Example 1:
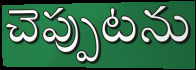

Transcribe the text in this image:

చెప్పుటను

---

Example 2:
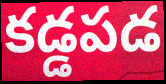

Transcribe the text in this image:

కడ్డపడ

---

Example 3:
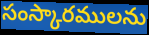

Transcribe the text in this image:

సంస్కారములను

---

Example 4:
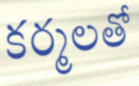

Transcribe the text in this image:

కర్మలతో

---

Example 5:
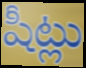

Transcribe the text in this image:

షీట్లు